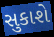
સુકાશે